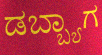
ಡಬ್ಬ್ಯಾಗ